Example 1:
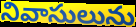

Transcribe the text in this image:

నివాసులును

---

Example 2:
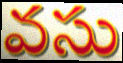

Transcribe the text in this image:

వసు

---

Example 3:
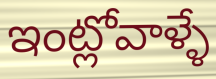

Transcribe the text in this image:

ఇంట్లోవాళ్ళే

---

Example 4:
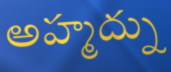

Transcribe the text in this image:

అహ్మద్ను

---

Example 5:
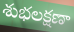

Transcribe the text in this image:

శుభలక్షణా